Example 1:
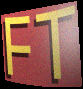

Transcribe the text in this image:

FT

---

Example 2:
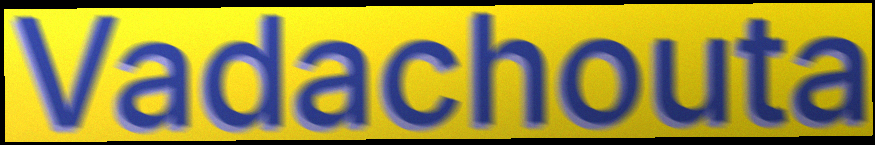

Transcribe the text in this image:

Vadachouta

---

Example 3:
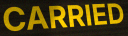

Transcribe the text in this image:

CARRIED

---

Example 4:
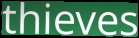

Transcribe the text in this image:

thieves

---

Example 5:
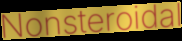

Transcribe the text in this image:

Nonsteroidal